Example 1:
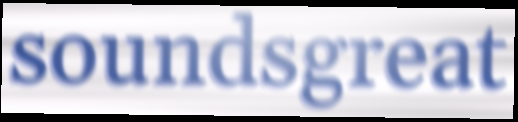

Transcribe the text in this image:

soundsgreat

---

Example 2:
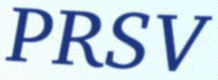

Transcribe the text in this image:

PRSV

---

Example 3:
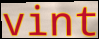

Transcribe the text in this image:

vint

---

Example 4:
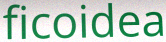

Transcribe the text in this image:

ficoidea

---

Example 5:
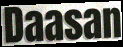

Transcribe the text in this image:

Daasan